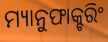
ମ୍ୟାନୁଫାକ୍ଚରିଂ